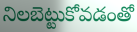
నిలబెట్టుకోవడంతో